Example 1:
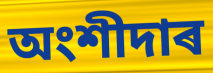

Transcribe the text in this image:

অংশীদাৰ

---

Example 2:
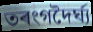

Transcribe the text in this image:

তৰংগদৈৰ্ঘ্য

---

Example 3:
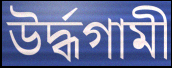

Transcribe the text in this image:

উৰ্দ্ধগামী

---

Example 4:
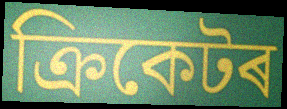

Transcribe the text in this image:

ক্ৰিকেটৰ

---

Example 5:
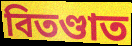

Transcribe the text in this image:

বিতণ্ডাত